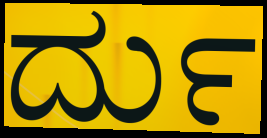
ರ್ದು